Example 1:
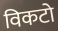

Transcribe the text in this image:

विकटो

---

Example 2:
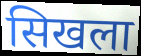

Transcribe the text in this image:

सिखला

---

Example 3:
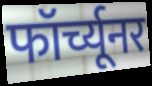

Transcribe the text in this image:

फॉर्च्यूनर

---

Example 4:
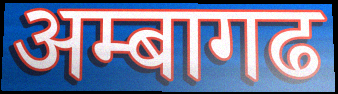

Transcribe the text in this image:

अम्बागढ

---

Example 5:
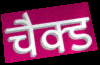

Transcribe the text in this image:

चैक्ड